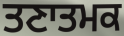
ਤਣਾਤਮਕ